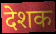
देशक